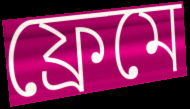
ফ্রেমে